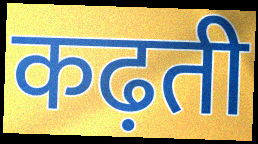
कढ़ती